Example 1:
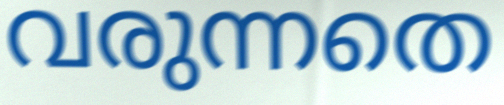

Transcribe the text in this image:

വരുന്നതെ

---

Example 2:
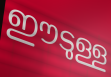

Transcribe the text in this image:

ഈടുള്ള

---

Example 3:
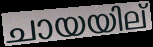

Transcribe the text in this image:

ചായയില്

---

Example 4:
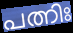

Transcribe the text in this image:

പത്നിഃ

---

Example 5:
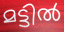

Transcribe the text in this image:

മട്ടിൽ